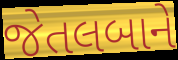
જેતલબાને